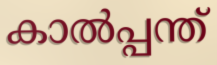
കാൽപ്പന്ത്